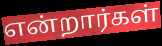
என்றார்கள்